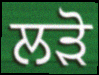
ਲੜੋ